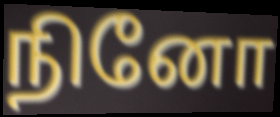
நினோ